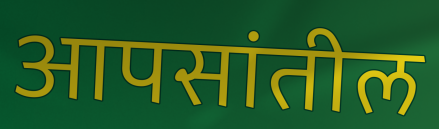
आपसांतील